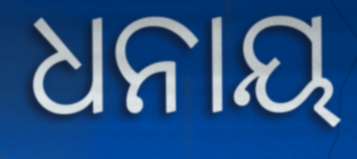
ଧନାୟ